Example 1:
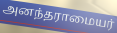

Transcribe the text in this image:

அனந்தராமையர்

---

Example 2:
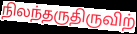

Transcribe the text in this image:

நிலந்தருதிருவிற்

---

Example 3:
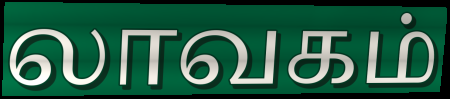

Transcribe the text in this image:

லாவகம்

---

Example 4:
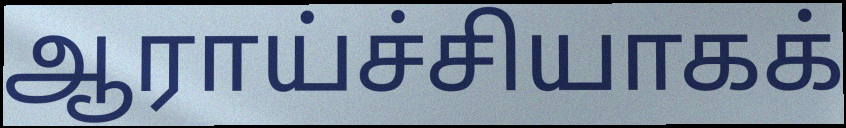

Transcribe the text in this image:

ஆராய்ச்சியாகக்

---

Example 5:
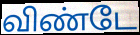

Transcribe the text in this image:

விண்டே